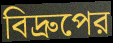
বিদ্রুপের